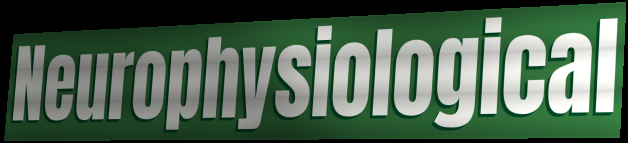
Neurophysiological